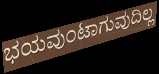
ಭಯವುಂಟಾಗುವುದಿಲ್ಲ